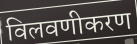
विलवणीकरण